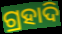
ଗ୍ରହାଦି